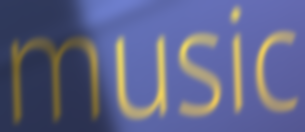
music